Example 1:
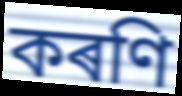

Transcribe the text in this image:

কৰণি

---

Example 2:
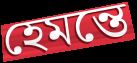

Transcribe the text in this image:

হেমন্তে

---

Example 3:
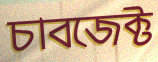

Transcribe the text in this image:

চাবজেক্ট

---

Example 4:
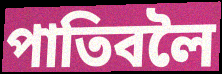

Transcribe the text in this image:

পাতিবলৈ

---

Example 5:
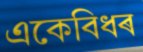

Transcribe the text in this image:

একেবিধৰ